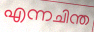
എന്നചിന്ത